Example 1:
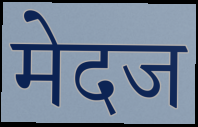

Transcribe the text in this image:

मेदज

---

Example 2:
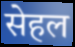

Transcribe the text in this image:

सेहल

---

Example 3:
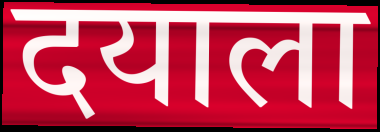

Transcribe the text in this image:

दयाला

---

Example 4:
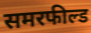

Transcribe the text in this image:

समरफील्ड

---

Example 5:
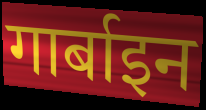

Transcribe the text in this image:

गार्बाइन